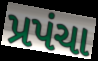
પ્રપંચા